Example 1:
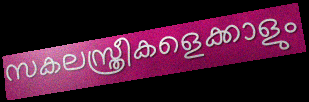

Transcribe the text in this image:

സകലസ്ത്രീകളെക്കാളും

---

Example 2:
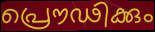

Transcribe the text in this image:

പ്രൌഢിക്കും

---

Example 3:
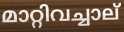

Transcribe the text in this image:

മാറ്റിവച്ചാല്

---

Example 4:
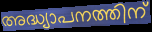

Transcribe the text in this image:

അദ്ധ്യാപനത്തിന്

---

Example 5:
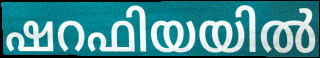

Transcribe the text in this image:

ഷറഫിയയിൽ